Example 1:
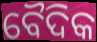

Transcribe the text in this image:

ବୈଦିକ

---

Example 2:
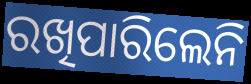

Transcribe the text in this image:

ରଖିପାରିଲେନି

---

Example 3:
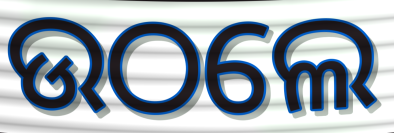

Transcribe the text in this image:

ଉଠଲେ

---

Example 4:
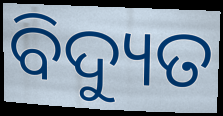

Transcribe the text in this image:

ବିଦ୍ୟୁତ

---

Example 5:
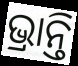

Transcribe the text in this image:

ଭ୍ରାନ୍ତି